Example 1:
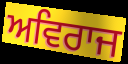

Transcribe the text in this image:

ਅਵਿਰਾਜ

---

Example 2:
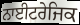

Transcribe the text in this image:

ਨਾਈਟਰੇਜਿਕ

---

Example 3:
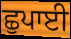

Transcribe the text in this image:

ਛੁਪਾਈ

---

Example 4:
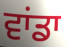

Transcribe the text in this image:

ਵਾਂਡਾ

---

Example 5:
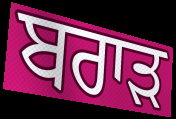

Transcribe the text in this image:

ਬਰਾੜ